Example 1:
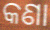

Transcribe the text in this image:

କଣା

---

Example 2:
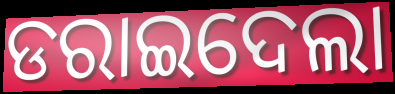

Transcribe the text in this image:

ଡରାଇଦେଲା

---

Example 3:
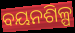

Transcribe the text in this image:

ବୟନଶିଳ୍ପ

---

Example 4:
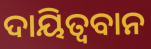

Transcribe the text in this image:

ଦାୟିତ୍ବବାନ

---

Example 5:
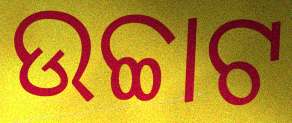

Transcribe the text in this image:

ଉଚ୍ଚାଟ